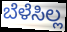
ಬೆಳೆಸಿಲ್ಲ